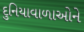
દુનિયાવાળાઓને